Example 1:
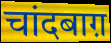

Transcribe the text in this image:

चांदबाग़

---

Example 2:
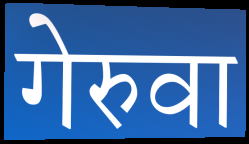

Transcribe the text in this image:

गेरुवा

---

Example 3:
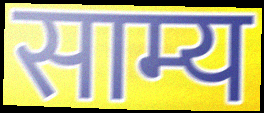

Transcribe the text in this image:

साम्‍य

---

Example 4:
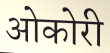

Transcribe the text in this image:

ओकोरी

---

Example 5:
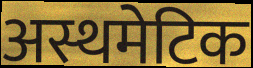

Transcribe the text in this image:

अस्थमेटिक